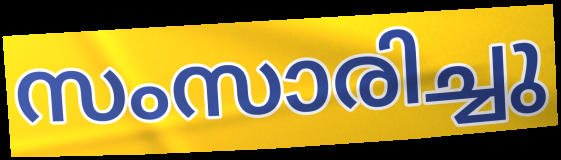
സംസാരിച്ചു